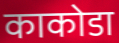
काकोडा